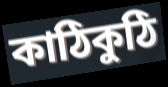
কাঠিকুঠি